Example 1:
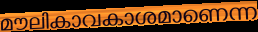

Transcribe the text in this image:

മൗലികാവകാശമാണെന്ന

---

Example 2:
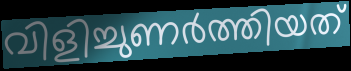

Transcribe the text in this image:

വിളിച്ചുണർത്തിയത്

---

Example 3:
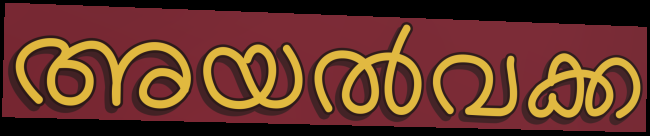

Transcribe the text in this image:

അയൽവക്ക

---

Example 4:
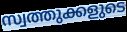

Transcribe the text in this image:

സ്വത്തുക്കളുടെ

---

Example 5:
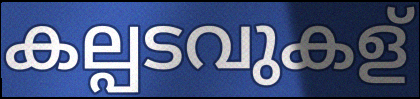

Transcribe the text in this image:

കല്പടവുകള്